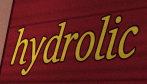
hydrolic